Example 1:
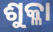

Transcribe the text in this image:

ଶୁକ୍ଳା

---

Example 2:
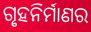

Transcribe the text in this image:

ଗୃହନିର୍ମାଣର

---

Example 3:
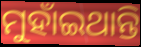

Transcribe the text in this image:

ମୁହାଁଇଥାନ୍ତି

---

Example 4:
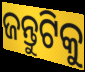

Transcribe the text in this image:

ଜନ୍ତୁଟିକୁ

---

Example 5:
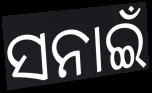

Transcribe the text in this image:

ସନାଇଁ